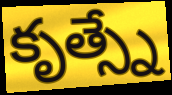
కృత్స్నే